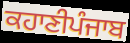
ਕਹਾਣੀਪੰਜਾਬ